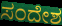
ಸಂದೇಶ